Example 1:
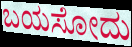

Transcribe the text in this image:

ಬಯಸೋದು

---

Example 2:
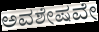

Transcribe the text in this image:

ಅವಶೇಷವೇ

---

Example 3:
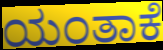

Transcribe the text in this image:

ಯಂತಾಕೆ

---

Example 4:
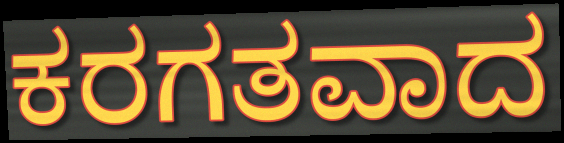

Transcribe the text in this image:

ಕರಗತವಾದ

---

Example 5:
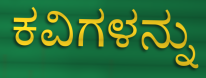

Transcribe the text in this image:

ಕವಿಗಳನ್ನು